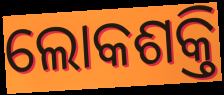
ଲୋକଶକ୍ତି